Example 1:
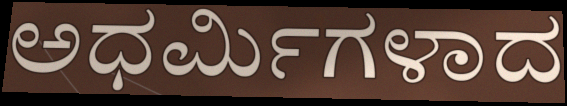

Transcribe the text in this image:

ಅಧರ್ಮಿಗಳಾದ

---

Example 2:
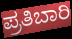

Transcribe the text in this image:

ಪ್ರತಿಬಾರಿ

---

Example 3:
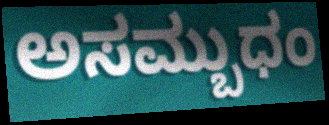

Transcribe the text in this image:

ಅಸಮ್ಬುಧಂ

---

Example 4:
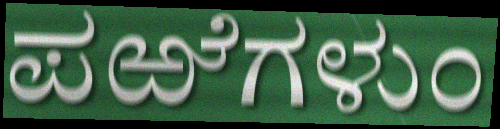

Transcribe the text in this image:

ಪಱೆಗಳುಂ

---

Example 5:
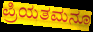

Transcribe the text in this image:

ಪ್ರಿಯತಮನೂ